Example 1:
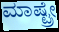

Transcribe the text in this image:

ಮಾಷ್ಟ್ರೇ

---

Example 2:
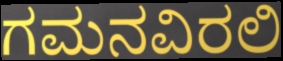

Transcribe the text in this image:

ಗಮನವಿರಲಿ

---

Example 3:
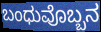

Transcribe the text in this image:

ಬಂಧುವೊಬ್ಬನ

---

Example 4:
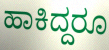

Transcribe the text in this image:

ಹಾಕಿದ್ದರೂ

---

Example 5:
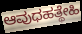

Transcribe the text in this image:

ಆವುಧಹತ್ಥೇಹಿ